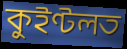
কুইণ্টলত